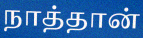
நாத்தான்